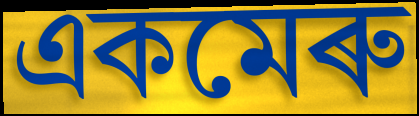
একমেৰু